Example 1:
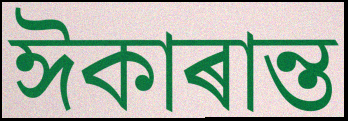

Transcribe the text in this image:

ঈকাৰান্ত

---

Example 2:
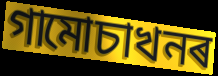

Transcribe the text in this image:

গামোচাখনৰ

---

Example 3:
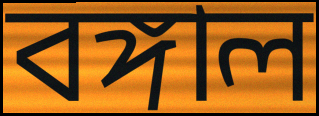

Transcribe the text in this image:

বঙ্গাল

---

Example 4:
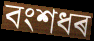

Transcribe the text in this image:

বংশধৰ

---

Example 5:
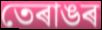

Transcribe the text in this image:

তেৰাঙৰ